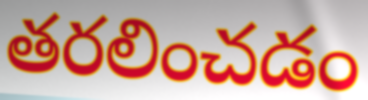
తరలించడం